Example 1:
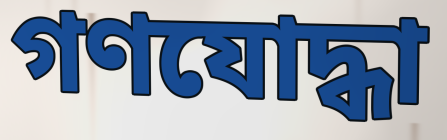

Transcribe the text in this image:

গণযোদ্ধা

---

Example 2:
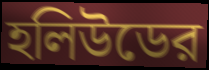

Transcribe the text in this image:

হলিউডের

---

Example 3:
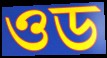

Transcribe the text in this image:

ওড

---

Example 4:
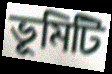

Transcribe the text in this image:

ভূমিটি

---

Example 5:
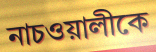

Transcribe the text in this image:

নাচওয়ালীকে